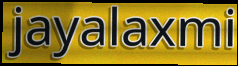
jayalaxmi